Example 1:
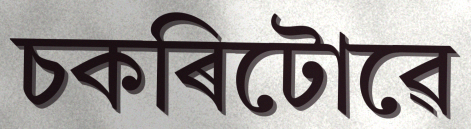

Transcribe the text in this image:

চকৰিটোৱে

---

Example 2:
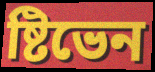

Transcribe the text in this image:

ষ্টিভেন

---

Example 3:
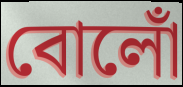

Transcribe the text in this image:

বোলোঁ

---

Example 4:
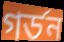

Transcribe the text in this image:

গৰ্ডন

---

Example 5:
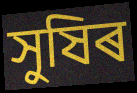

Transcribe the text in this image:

সুষিৰ